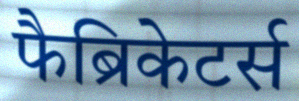
फैब्रिकेटर्स